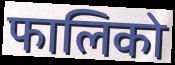
फालिको